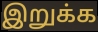
இறுக்க